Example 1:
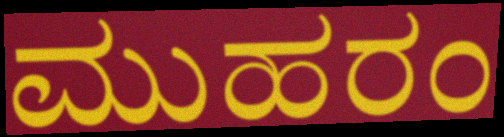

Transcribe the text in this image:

ಮುಹರಂ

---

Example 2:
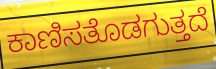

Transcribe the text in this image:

ಕಾಣಿಸತೊಡಗುತ್ತದೆ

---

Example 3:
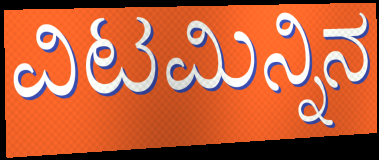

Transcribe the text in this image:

ವಿಟಮಿನ್ನಿನ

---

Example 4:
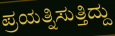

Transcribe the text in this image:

ಪ್ರಯತ್ನಿಸುತ್ತಿದ್ದು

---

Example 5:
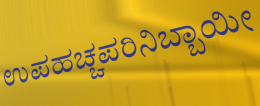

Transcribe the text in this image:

ಉಪಹಚ್ಚಪರಿನಿಬ್ಬಾಯೀ